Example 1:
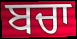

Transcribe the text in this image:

ਬਚਾ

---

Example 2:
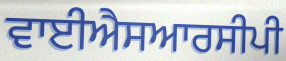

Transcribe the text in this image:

ਵਾਈਐਸਆਰਸੀਪੀ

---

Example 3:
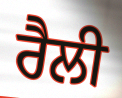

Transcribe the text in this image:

ਰੈਲੀ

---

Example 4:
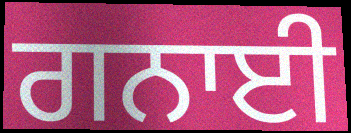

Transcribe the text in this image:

ਗਨਾਈ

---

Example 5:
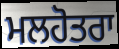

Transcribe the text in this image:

ਮਲਹੋਤਰਾ